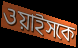
ওয়াইসকে